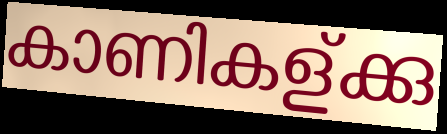
കാണികള്ക്കു